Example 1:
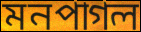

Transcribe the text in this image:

মনপাগল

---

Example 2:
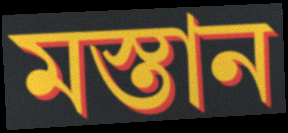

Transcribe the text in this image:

মস্তান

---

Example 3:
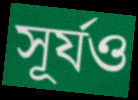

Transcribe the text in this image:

সূর্যও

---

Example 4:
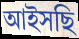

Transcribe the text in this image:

আইসছি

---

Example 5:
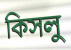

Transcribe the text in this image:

কিসলু